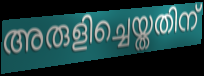
അരുളിച്ചെയ്തതിന്